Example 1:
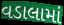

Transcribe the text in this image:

વડાલામાં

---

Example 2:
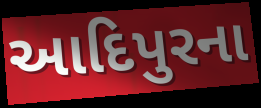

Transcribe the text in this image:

આદિપુરના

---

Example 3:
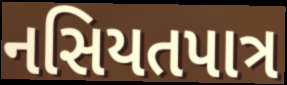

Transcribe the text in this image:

નસિયતપાત્ર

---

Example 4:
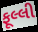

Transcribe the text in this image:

ફૂલ્લી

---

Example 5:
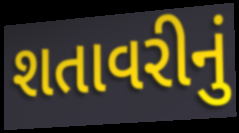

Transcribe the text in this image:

શતાવરીનું